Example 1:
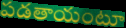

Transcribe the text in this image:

పడతాయంటూ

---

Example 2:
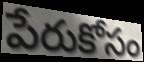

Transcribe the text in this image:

పేరుకోసం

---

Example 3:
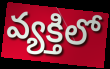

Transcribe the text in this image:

వ్యక్తిలో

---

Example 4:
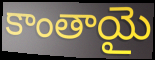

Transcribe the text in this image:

కాంతాయై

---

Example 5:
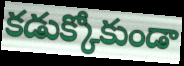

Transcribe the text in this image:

కడుక్కోకుండా